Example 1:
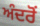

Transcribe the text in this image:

ਅੰਦਰੋਂ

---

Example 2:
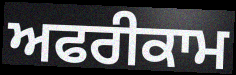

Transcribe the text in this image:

ਅਫਰੀਕਾਮ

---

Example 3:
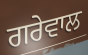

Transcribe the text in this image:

ਗਰੇਵਾਲ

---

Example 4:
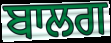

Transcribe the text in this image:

ਬਾਲਗ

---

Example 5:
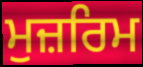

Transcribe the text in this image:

ਮੁਜ਼ਰਿਮ